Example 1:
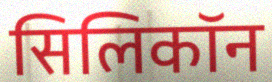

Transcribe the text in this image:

सिलिकॉन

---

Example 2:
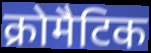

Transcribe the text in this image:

क्रोमैटिक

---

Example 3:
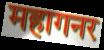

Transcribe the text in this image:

महागनर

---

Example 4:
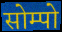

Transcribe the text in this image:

सोम्पो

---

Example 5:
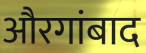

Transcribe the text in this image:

औरगांबाद